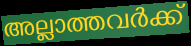
അല്ലാത്തവർക്ക്